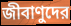
জীবাণুদের